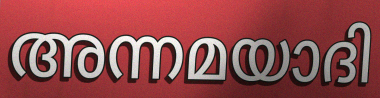
അന്നമയാദി